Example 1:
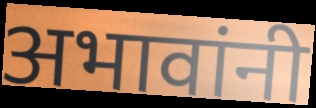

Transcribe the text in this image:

अभावांनी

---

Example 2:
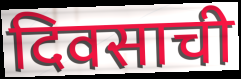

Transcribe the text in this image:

दिवसाची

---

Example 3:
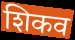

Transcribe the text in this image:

शिकव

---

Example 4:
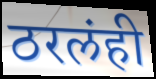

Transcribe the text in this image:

ठरलंही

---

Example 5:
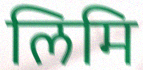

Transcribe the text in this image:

लिमि